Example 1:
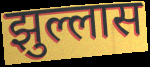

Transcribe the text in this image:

झुल्लास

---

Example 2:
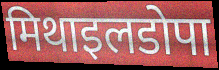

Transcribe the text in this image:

मिथाइलडोपा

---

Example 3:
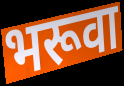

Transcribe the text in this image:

भरूवा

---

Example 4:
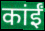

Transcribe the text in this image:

कांईं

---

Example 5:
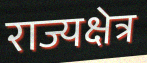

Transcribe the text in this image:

राज्यक्षेत्र